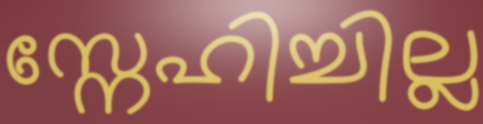
സ്നേഹിച്ചില്ല